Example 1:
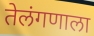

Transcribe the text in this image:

तेलंगणाला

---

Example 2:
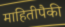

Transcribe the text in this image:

माहितीपैकी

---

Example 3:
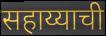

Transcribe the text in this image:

सहाय्याची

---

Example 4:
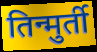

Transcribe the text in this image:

तिन्मुर्ती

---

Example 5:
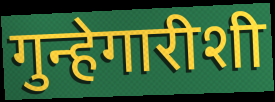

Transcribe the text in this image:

गुन्हेगारीशी